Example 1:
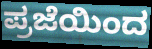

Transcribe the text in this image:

ಪ್ರಜೆಯಿಂದ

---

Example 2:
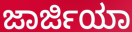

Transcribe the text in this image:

ಜಾರ್ಜಿಯಾ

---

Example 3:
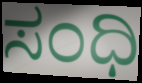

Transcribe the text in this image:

ಸಂಧಿ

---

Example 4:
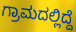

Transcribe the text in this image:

ಗ್ರಾಮದಲ್ಲಿದ್ದೆ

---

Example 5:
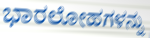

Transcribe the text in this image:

ಭಾರಲೋಹಗಳನ್ನು